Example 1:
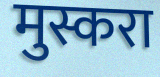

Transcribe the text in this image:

मुस्करा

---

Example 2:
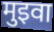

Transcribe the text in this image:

मुइवा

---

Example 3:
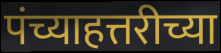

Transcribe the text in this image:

पंच्याहत्तरीच्या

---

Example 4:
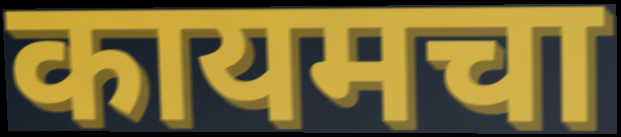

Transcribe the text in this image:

कायमचा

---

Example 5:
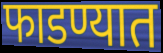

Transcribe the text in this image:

फाडण्यात